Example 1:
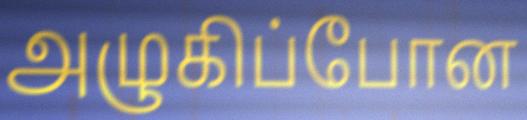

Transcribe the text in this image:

அழுகிப்போன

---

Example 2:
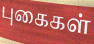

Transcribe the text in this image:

புகைகள்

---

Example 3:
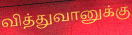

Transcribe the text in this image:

வித்துவானுக்கு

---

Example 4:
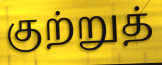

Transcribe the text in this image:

குற்றுத்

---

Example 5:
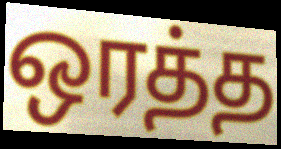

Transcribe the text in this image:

ஒரத்த